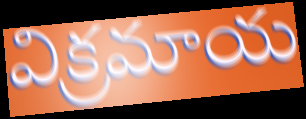
విక్రమాయ